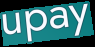
upay